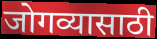
जोगव्यासाठी